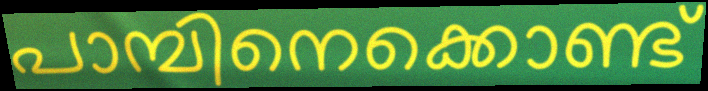
പാമ്പിനെക്കൊണ്ട്